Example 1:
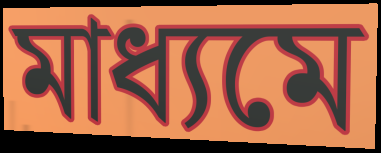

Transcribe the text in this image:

মাধ্যমে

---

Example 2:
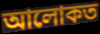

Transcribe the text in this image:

আলোকত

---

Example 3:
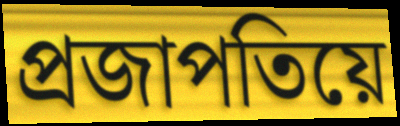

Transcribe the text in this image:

প্ৰজাপতিয়ে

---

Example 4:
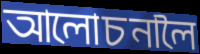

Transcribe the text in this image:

আলোচনালৈ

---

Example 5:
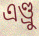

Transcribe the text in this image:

এণ্ড্ৰু